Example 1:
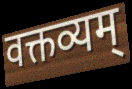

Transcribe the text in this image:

वक्तव्यम्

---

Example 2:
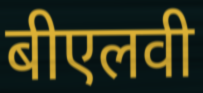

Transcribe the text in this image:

बीएलवी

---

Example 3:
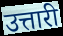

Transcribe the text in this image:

उत्तारी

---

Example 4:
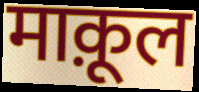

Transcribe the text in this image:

माक़ूल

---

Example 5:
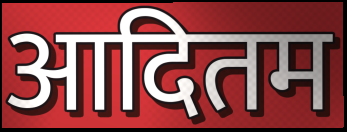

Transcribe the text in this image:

आदितम